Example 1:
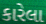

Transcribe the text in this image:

કારેલા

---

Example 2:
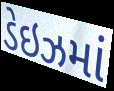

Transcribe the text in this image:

ડેઇઝમાં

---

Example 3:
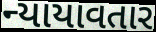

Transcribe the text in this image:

ન્યાયાવતાર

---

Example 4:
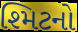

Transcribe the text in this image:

શ્મિટનો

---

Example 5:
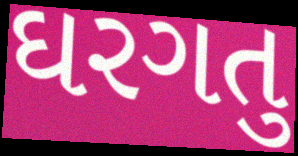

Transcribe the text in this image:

ઘરગતુ